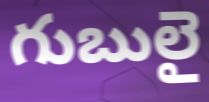
గుబులై